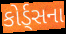
કોર્ડ્સના